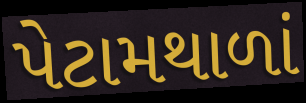
પેટામથાળાં